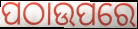
ପଠାଉପରେ